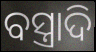
ବସ୍ତ୍ରାଦି